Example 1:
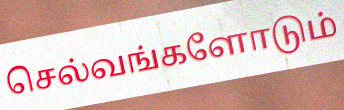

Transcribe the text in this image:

செல்வங்களோடும்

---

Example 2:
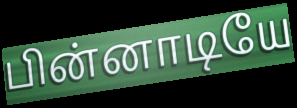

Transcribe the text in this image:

பின்னாடியே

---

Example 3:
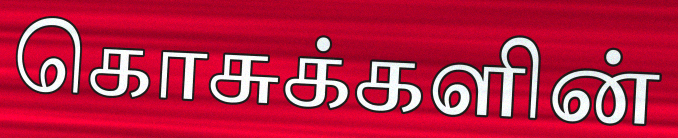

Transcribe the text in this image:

கொசுக்களின்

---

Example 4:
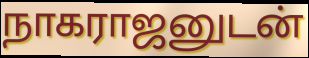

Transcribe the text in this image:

நாகராஜனுடன்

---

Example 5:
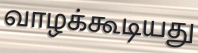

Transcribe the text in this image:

வாழக்கூடியது